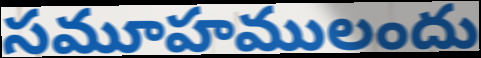
సమూహములందు